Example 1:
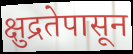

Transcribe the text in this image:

क्षुद्रतेपासून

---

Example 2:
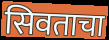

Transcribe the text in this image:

सिवताचा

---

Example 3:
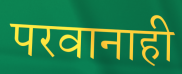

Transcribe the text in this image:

परवानाही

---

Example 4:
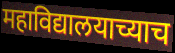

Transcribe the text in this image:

महाविद्यालयाच्याच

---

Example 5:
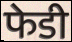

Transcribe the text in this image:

फेडी